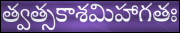
త్వత్సకాశమిహాగతః